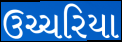
ઉચ્ચરિયા